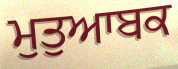
ਮੁਤੁਆਬਕ